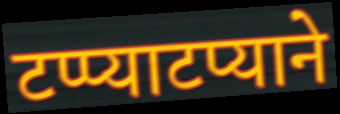
टप्प्याटप्याने